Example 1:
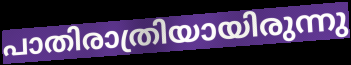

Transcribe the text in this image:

പാതിരാത്രിയായിരുന്നു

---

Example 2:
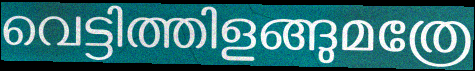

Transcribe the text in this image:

വെട്ടിത്തിളങ്ങുമത്രേ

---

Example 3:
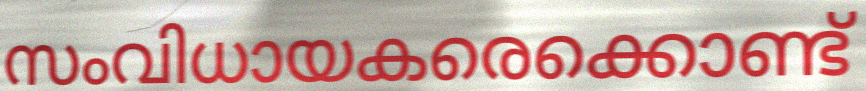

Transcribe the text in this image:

സംവിധായകരെക്കൊണ്ട്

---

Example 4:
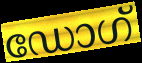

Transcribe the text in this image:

ഡോഗ്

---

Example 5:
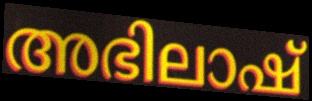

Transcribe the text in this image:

അഭിലാഷ്